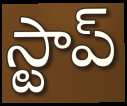
స్టాప్